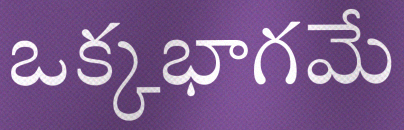
ఒక్కభాగమే